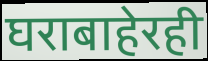
घराबाहेरही